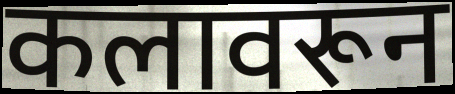
कलावरून